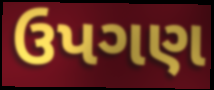
ઉપગણ